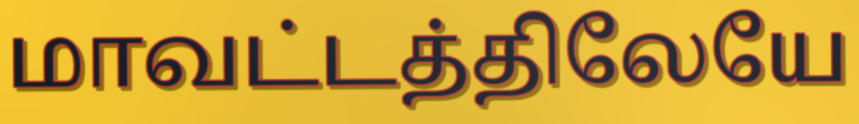
மாவட்டத்திலேயே